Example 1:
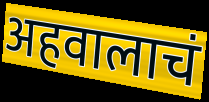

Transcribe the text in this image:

अहवालाचं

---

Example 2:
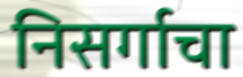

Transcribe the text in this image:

निसर्गाचा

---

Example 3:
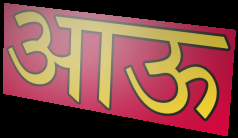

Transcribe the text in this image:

आऊ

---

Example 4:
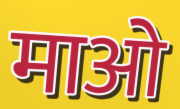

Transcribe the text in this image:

माओ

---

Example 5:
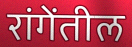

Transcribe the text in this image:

रांगेंतील